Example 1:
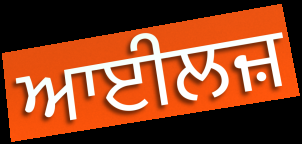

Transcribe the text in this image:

ਆਈਲਜ਼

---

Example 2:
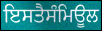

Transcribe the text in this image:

ਇਸਤੈਸੰਮਿਊਲ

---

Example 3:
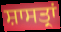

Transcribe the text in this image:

ਸ਼ਾਸਤ੍ਰਾਂ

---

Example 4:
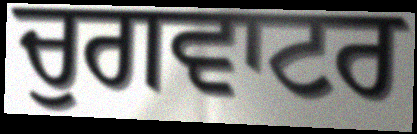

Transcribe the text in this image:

ਚੁਗਵਾਟਰ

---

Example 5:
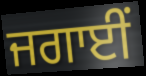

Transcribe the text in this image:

ਜਗਾਈਂ